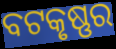
ବଟକୃଷ୍ଣର